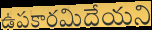
ఉపకారమిదేయని